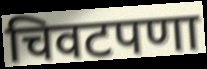
चिवटपणा